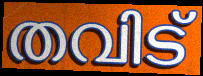
തവിട്